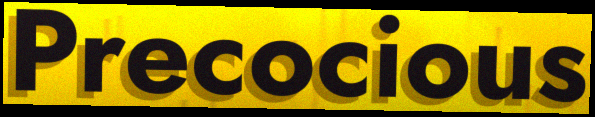
Precocious